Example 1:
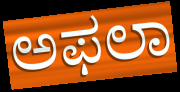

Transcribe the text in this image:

ಅಫಲಾ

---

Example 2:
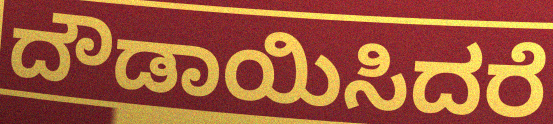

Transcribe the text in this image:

ದೌಡಾಯಿಸಿದರೆ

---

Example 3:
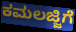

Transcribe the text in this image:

ಕಮಲಜ್ಜಿಗೆ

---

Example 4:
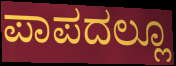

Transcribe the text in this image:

ಪಾಪದಲ್ಲೂ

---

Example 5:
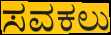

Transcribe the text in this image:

ಸವಕಲು